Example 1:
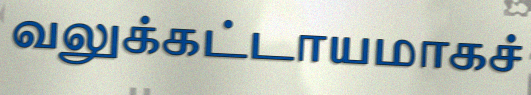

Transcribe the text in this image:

வலுக்கட்டாயமாகச்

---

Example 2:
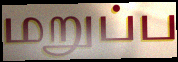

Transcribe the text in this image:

மறுப்ப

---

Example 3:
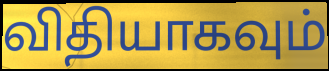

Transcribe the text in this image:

விதியாகவும்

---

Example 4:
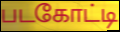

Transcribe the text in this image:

படகோட்டி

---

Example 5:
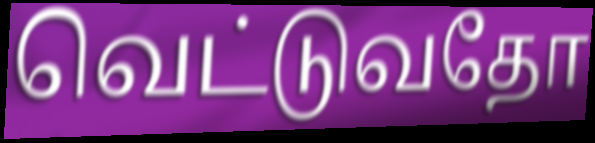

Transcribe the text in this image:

வெட்டுவதோ